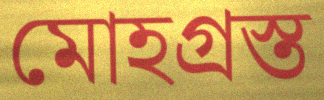
মোহগ্রস্ত